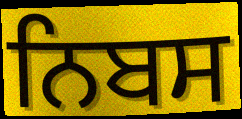
ਨਿਬਸ